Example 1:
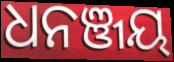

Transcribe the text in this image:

ଧନଞ୍ଜୟ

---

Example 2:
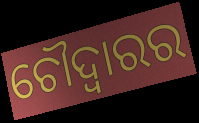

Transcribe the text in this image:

ଚୌଦ୍ୱାରର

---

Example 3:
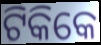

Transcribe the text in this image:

ଟିକିକେ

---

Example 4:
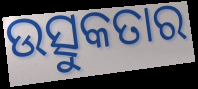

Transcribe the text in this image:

ଉତ୍ସୁକତାର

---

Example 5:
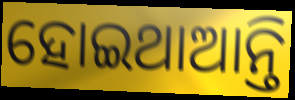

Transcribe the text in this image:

ହୋଇଥାଆନ୍ତି